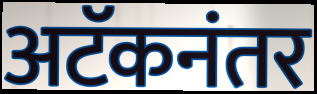
अटॅकनंतर